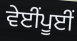
ਵੇਈਂਪੂਈਂ